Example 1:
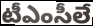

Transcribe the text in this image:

టీఎంసీలే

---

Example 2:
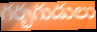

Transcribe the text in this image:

గర్భగుడులు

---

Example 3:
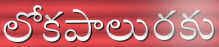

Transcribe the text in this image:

లోకపాలురకు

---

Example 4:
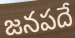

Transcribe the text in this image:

జనపదే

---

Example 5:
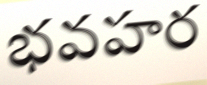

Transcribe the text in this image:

భవహర